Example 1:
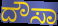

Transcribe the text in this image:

ದೌಸಾ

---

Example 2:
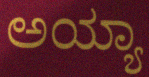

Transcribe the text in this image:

ಅಯ್ಯಾ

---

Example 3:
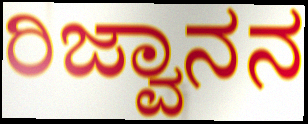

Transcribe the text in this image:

ರಿಜ್ವಾನನ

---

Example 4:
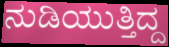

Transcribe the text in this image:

ನುಡಿಯುತ್ತಿದ್ದ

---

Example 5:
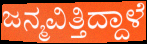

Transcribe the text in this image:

ಜನ್ಮವಿತ್ತಿದ್ದಾಳೆ